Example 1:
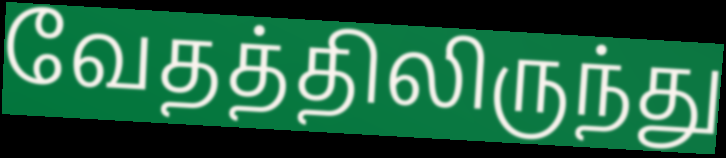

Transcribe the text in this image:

வேதத்திலிருந்து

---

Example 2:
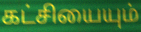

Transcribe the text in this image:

கட்சியையும்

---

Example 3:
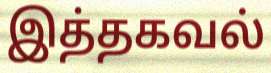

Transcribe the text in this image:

இத்தகவல்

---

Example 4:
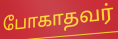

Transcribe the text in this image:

போகாதவர்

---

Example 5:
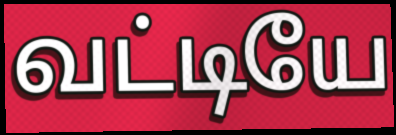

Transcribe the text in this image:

வட்டியே